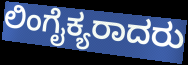
ಲಿಂಗೈಕ್ಯರಾದರು